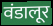
वंडालूर